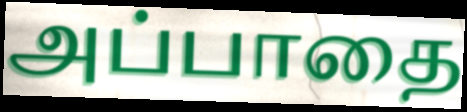
அப்பாதை